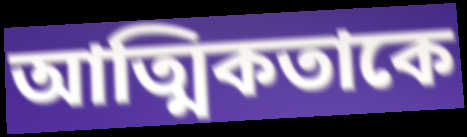
আত্মিকতাকে